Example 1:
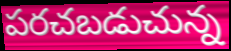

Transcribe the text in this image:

పరచబడుచున్న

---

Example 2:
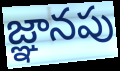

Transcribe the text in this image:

జ్ఞానపు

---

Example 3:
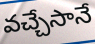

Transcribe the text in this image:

వచ్చేసానే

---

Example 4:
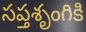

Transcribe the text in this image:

సప్తశృంగికి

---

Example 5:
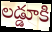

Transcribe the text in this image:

లడ్డూకి